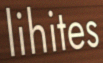
lihites